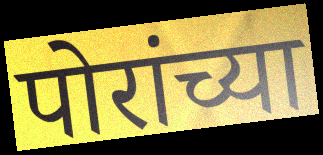
पोरांच्या